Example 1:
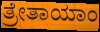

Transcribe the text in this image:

ತ್ರೇತಾಯಾಂ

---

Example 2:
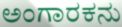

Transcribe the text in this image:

ಅಂಗಾರಕನು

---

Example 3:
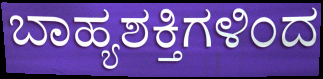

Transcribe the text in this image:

ಬಾಹ್ಯಶಕ್ತಿಗಳಿಂದ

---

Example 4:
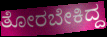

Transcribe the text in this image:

ತೋರಬೇಕಿದ್ದ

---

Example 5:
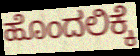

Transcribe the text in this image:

ಹೊಂದಲಿಕ್ಕೆ